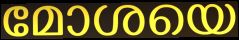
മോശയെ